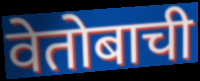
वेतोबाची